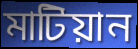
মাটিয়ান